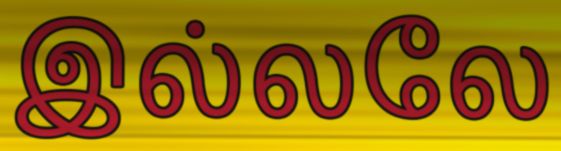
இல்லலே